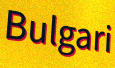
Bulgari